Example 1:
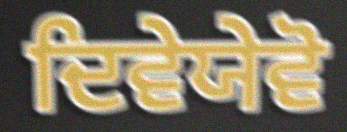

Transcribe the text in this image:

ਦਿਵੇਯੇਵੋ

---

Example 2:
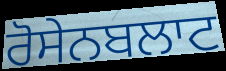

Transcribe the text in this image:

ਰੋਸੇਨਬਲਾਟ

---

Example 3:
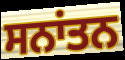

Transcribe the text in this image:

ਸਨਾਂਤਨ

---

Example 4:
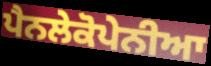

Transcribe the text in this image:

ਪੈਨਲੇਕੋਪੇਨੀਆ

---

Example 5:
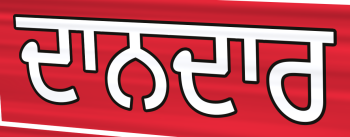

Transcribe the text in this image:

ਦਾਨਦਾਰ